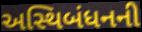
અસ્થિબંધનની